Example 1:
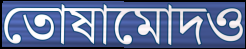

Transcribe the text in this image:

তোষামোদও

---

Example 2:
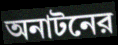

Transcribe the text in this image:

অনাটনের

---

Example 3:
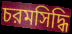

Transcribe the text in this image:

চরমসিদ্ধি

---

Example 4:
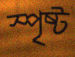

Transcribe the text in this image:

স্পৃষ্ট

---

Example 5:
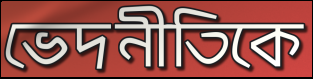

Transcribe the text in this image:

ভেদনীতিকে